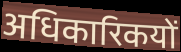
अधिकारिकयों